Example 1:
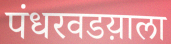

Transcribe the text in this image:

पंधरवडय़ाला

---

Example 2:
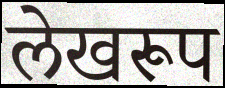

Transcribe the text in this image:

लेखरूप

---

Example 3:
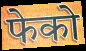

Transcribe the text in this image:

फेको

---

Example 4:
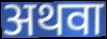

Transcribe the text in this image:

अथवा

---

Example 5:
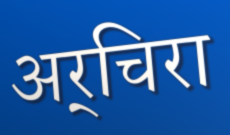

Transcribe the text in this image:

अर्चिरा